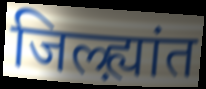
जिल्ह्य़ांत